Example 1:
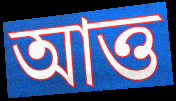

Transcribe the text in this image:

আত্ত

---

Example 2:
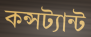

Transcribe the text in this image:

কন্সট্যান্ট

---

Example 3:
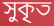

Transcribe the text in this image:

সুকৃত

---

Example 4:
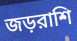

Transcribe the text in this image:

জড়রাশি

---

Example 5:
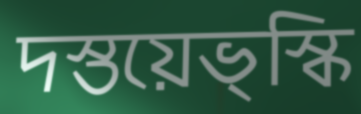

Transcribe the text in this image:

দস্তয়েভ্স্কি